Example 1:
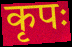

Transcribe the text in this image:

कृपः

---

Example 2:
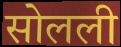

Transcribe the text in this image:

सोलली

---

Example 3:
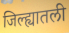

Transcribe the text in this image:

जिल्ह्यातली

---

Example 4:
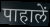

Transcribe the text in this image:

पाहालें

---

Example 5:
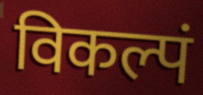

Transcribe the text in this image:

विकल्पं